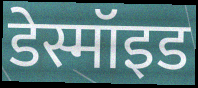
डेस्मॉइड